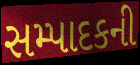
સમ્પાદકની